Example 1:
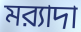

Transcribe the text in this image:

মর‍্যাদা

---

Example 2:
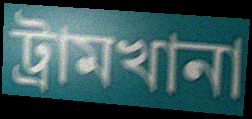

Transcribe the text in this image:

ট্রামখানা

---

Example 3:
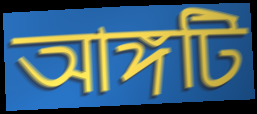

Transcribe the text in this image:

আঙ্গটি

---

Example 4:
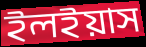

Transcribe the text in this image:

ইলইয়াস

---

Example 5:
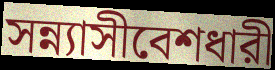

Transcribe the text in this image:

সন্ন্যাসীবেশধারী